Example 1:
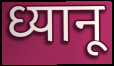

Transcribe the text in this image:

ध्यानू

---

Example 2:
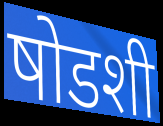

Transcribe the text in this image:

षोडशी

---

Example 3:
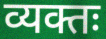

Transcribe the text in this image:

व्यक्तः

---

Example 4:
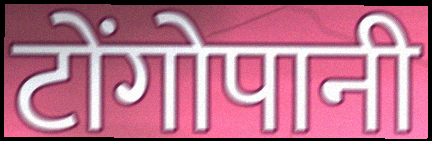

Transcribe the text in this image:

टोंगोपानी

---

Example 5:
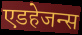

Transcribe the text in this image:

एडहेजन्स